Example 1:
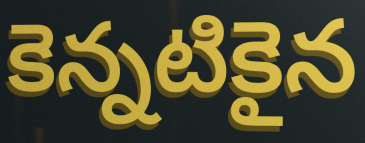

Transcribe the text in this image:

కెన్నటికైన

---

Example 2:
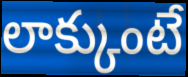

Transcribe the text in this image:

లాక్కుంటే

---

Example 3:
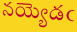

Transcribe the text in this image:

నయ్యెడఁ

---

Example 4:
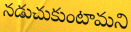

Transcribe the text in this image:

నడుచుకుంటామని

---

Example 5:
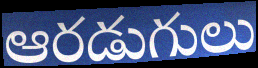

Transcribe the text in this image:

ఆరడుగులు